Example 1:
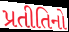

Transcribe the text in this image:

પ્રતીતિનો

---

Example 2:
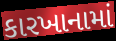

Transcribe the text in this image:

કારખાનામાં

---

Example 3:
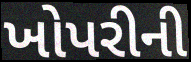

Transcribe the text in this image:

ખોપરીની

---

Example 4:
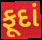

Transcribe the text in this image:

ફૂદાં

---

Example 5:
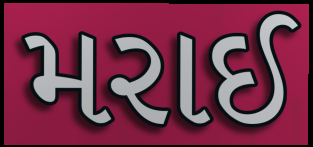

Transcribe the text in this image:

મરાઈ